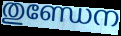
തുണ്ഡേന